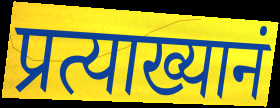
प्रत्याख्यानं